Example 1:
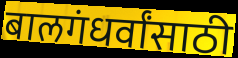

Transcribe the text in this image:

बालगंधर्वांसाठी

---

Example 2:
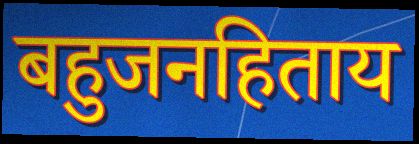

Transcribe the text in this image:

बहुजनहिताय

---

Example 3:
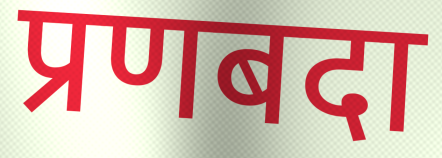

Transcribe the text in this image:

प्रणबदा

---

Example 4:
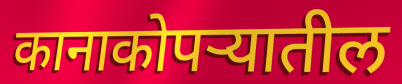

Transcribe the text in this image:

कानाकोपऱ्यातील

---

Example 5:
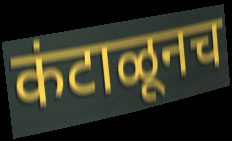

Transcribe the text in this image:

कंटाळूनच